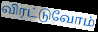
விரட்டுவோம்